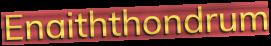
Enaiththondrum